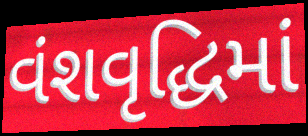
વંશવૃદ્ધિમાં